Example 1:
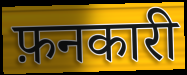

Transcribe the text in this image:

फ़नकारी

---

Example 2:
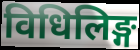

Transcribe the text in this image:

विधिलिङ्ग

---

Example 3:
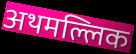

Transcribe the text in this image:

अथमल्लिक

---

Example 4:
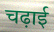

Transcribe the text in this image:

चढ़ाई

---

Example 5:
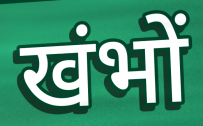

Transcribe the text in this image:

खंभों